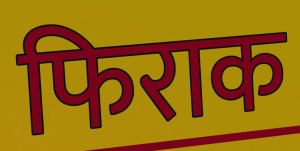
फिराक